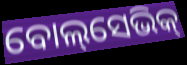
ବୋଲ୍‌ସେଭିକ୍